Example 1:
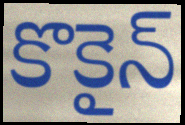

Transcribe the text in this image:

కొకైన్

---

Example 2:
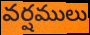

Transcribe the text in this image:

వర్షములు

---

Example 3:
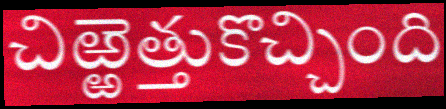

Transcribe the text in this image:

చిఱ్ఱెత్తుకొచ్చింది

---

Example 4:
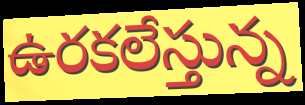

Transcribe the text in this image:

ఉరకలేస్తున్న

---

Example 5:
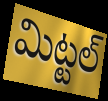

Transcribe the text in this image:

మిట్టల్